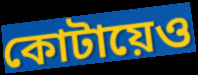
কোটায়েও